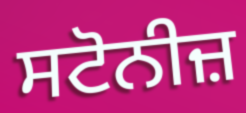
ਸਟੋਨੀਜ਼